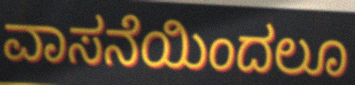
ವಾಸನೆಯಿಂದಲೂ